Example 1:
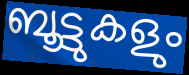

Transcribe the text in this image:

ബൂട്ടുകളും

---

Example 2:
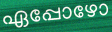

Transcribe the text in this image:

ഏപ്പോഴോ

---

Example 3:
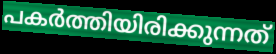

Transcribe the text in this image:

പകർത്തിയിരിക്കുന്നത്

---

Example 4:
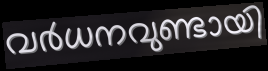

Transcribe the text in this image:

വർധനവുണ്ടായി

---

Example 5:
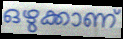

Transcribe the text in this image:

ഒഴുക്കാണ്